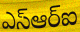
ఎస్ఆర్ఐ